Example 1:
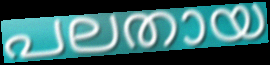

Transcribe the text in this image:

പലതായ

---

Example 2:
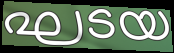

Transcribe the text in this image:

ഘടയ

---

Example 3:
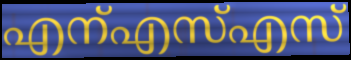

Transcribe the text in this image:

എന്എസ്എസ്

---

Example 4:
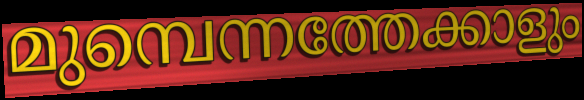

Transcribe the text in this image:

മുമ്പെന്നത്തേക്കാളും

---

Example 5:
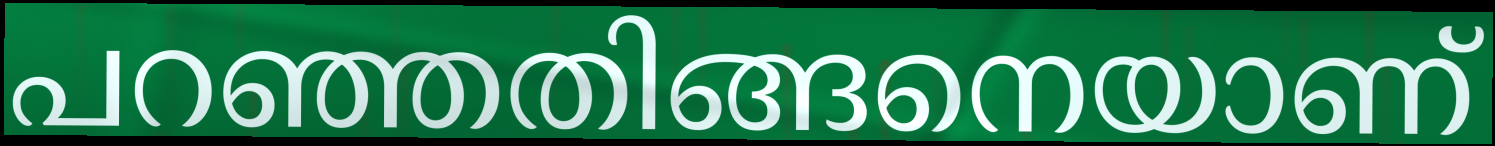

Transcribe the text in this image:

പറഞ്ഞതിങ്ങനെയാണ്